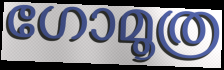
ഗോമൂത്ര